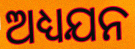
ଅଧ୍ୟଯନ